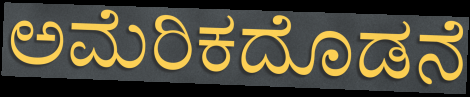
ಅಮೆರಿಕದೊಡನೆ